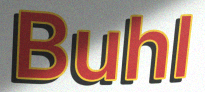
Buhl